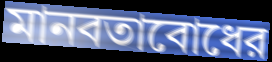
মানবতাবোধের